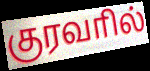
குரவரில்